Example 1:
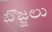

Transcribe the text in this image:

బొజ్జలు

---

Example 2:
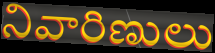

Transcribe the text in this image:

నివారిణులు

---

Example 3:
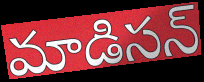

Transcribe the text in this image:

మాడిసన్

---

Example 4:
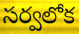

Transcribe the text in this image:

సర్వలోక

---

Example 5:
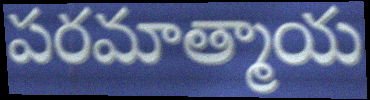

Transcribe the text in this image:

పరమాత్మాయ